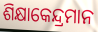
ଶିକ୍ଷାକେନ୍ଦ୍ରମାନ